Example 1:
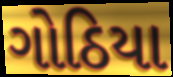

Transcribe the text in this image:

ગોઠિયા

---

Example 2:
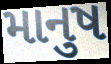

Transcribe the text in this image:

માનુષ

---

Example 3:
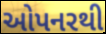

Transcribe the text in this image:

ઓપનરથી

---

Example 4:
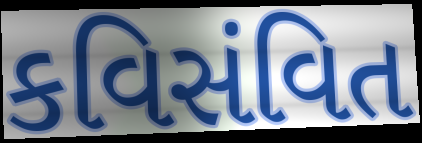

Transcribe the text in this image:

કવિસંવિત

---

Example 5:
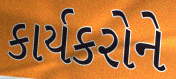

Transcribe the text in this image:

કાર્યકરોને